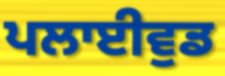
ਪਲਾਈਵੁਡ